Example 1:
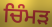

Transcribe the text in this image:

ਚਿੰਮੜ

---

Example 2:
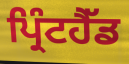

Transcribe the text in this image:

ਪ੍ਰਿੰਟਹੈੱਡ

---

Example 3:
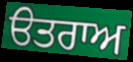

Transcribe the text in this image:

ੳਤਰਾਅ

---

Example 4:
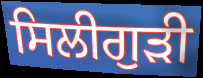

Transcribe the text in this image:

ਸਿਲੀਗੁੜੀ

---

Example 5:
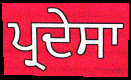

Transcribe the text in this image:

ਪ੍ਰਦੇਸਾ